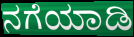
ನಗೆಯಾಡಿ